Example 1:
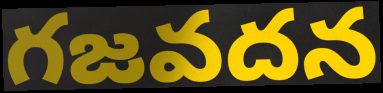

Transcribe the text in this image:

గజవదన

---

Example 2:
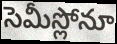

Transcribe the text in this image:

సెమీస్లోనూ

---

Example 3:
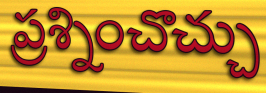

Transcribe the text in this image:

ప్రశ్నించొచ్చు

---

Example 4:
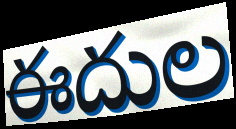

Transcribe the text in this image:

ఈదుల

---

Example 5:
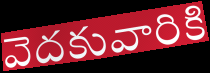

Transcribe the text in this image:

వెదకువారికి